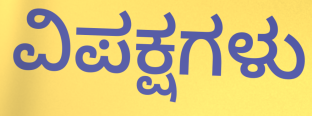
ವಿಪಕ್ಷಗಳು